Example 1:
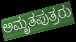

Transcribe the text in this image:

ಅಮೃತಪುತ್ರರು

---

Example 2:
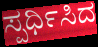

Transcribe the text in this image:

ಸ್ಪರ್ಧಿಸಿದ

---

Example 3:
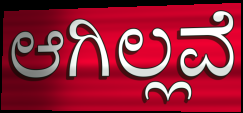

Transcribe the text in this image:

ಆಗಿಲ್ಲವೆ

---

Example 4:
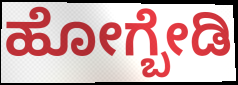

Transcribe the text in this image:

ಹೋಗ್ಬೇಡಿ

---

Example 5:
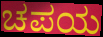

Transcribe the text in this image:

ಚಪಯ